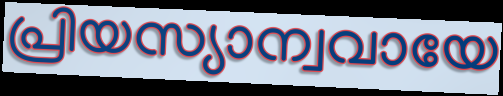
പ്രിയസ്യാന്വവായേ